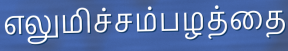
எலுமிச்சம்பழத்தை